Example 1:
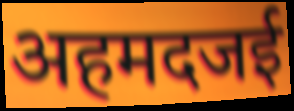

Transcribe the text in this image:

अहमदजई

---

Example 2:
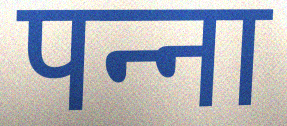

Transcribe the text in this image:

पन्ना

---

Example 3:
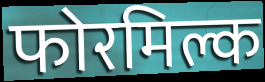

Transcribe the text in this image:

फोरमिल्क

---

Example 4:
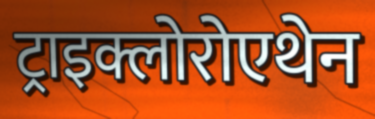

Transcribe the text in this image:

ट्राइक्लोरोएथेन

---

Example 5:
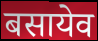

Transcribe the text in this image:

बसायेव